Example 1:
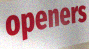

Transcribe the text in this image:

openers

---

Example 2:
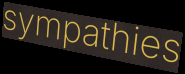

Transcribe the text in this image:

sympathies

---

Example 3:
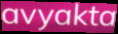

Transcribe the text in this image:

avyakta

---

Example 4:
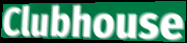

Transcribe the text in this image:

Clubhouse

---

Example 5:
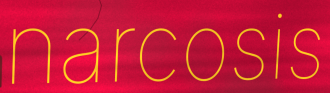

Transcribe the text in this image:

narcosis